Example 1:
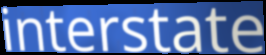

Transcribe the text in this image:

interstate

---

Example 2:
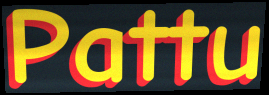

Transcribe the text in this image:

Pattu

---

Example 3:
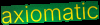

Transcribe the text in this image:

axiomatic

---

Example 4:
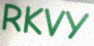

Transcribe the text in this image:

RKVY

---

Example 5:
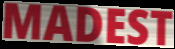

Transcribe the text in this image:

MADEST